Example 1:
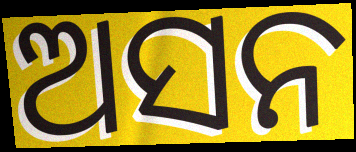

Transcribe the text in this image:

ଅସନ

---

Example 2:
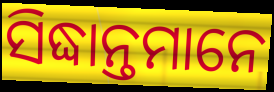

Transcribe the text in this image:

ସିଦ୍ଧାନ୍ତମାନେ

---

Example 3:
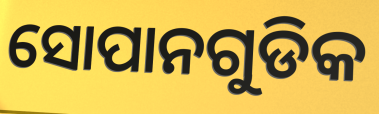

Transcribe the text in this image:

ସୋପାନଗୁଡିକ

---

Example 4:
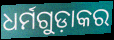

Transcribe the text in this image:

ଧର୍ମଗୁଡ଼ାକର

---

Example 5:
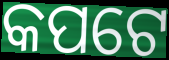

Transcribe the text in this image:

କପଟେ